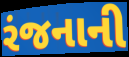
રંજનાની